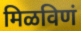
मिळविणं